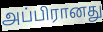
அப்பிரானது